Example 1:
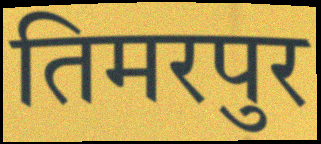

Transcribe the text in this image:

तिमरपुर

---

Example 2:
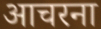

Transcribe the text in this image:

आचरना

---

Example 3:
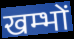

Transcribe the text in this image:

खम्भों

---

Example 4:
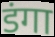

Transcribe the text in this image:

डंगा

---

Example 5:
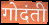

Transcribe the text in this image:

गोदंती